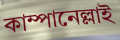
কাম্পানেল্লাই